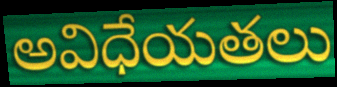
అవిధేయతలు